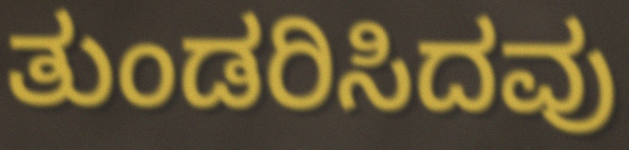
ತುಂಡರಿಸಿದವು